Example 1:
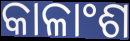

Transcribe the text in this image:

କାଳାଂଶ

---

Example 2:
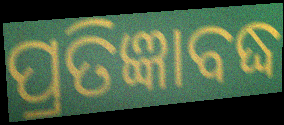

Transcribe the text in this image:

ପ୍ରତିଜ୍ଞାବଦ୍ଧ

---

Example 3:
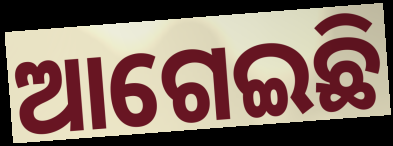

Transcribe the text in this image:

ଆଗେଇଛି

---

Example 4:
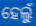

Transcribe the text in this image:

ହେଲୁଁ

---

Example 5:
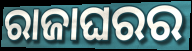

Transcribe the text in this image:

ରାଜାଘରର